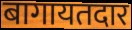
बागायतदार